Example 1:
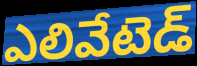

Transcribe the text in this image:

ఎలివేటెడ్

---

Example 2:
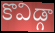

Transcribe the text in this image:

కొవిడ్గా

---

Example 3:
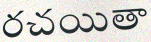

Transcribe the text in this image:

రచయితా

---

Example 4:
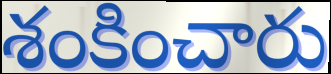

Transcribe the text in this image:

శంకించారు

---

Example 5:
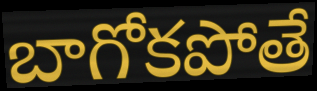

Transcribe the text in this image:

బాగోకపోతే